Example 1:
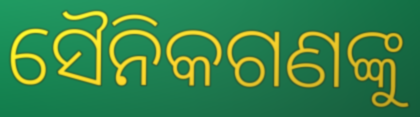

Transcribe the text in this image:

ସୈନିକଗଣଙ୍କୁ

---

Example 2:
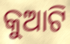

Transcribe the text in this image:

କୁଆଟି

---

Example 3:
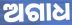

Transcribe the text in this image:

ଅଗାଧ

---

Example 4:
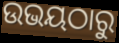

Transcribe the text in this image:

ଉଭୟଠାରୁ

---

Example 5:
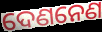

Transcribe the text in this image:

ଦେଣନେଣ